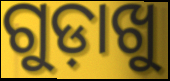
ଗୁଡ଼ାଖୁ